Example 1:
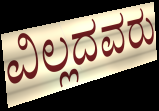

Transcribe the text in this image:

ವಿಲ್ಲದವರು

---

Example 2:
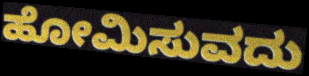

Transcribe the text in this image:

ಹೋಮಿಸುವದು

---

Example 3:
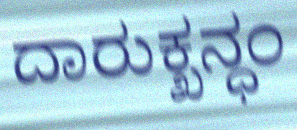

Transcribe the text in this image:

ದಾರುಕ್ಖನ್ಧಂ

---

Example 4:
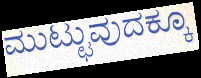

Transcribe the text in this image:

ಮುಟ್ಟುವುದಕ್ಕೂ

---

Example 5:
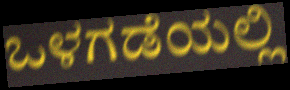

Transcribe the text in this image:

ಒಳಗಡೆಯಲ್ಲಿ